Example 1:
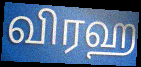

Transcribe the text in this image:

விரஹ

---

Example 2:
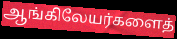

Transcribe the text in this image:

ஆங்கிலேயர்களைத்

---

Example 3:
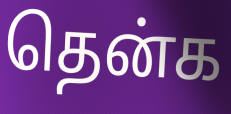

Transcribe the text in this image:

தென்க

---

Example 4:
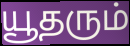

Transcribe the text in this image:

யூதரும்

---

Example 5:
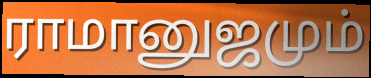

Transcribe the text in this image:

ராமானுஜமும்